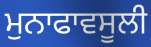
ਮੁਨਾਫਾਵਸੂਲੀ